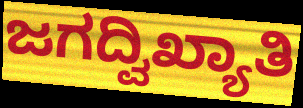
ಜಗದ್ವಿಖ್ಯಾತಿ